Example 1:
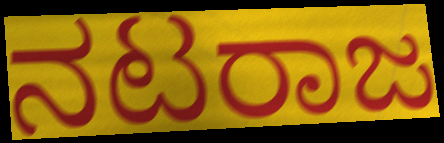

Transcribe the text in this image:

ನಟರಾಜ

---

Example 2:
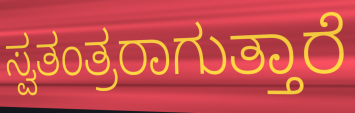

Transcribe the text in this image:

ಸ್ವತಂತ್ರರಾಗುತ್ತಾರೆ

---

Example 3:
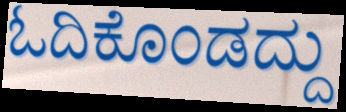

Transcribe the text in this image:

ಓದಿಕೊಂಡದ್ದು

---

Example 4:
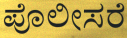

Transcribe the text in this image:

ಪೊಲೀಸರೆ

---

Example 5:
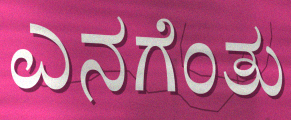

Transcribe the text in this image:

ಎನಗೆಂತು